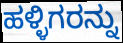
ಹಳ್ಳಿಗರನ್ನು